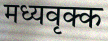
मध्यवृक्क